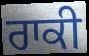
ਰਾਕੀ